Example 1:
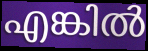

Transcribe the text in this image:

എങ്കിൽ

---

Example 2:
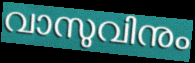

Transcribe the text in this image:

വാസുവിനും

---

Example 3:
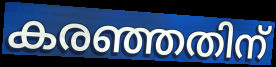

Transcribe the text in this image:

കരഞ്ഞതിന്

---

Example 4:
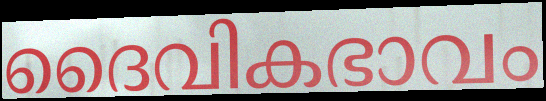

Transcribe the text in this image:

ദൈവികഭാവം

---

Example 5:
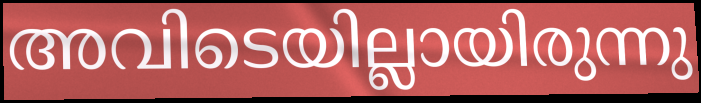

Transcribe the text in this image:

അവിടെയില്ലായിരുന്നു